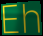
Eh